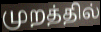
முறத்தில்